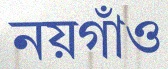
নয়গাঁও